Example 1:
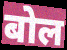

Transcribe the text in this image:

बोल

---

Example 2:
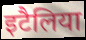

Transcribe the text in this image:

इटैलिया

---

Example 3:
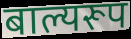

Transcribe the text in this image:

बाल्यरूप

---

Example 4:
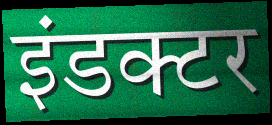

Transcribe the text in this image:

इंडक्टर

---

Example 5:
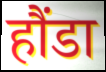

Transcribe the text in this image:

हौंडा